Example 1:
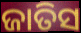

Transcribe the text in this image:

ଜାତିସ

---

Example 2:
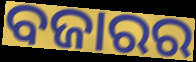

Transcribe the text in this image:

ବଜାରର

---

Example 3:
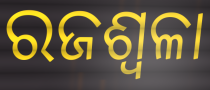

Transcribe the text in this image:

ରଜଶ୍ୱଳା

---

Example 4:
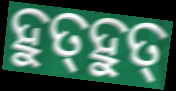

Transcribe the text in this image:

ହୁତ୍‍ହୁତ୍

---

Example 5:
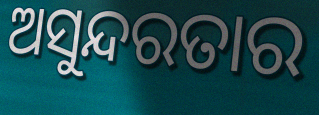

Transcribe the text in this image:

ଅସୁନ୍ଦରତାର